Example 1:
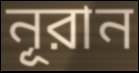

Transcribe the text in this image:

নূরান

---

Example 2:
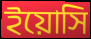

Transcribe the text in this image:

ইয়োসি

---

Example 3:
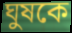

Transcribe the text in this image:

ঘুষকে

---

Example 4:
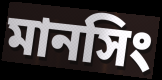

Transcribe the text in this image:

মানসিং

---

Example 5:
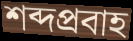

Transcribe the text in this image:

শব্দপ্রবাহ